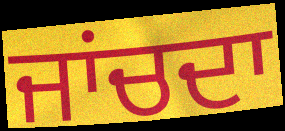
ਜਾਂਚਦਾ